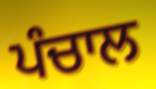
ਪੰਚਾਲ